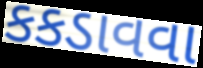
કકડાવવા